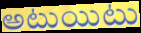
అటుయిటు